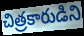
చిత్రకారుడిని